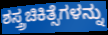
ಶಸ್ತ್ರಚಿಕಿತ್ಸೆಗಳನ್ನು